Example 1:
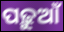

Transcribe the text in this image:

ପଢ଼ୁଆଁ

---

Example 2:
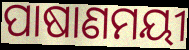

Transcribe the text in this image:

ପାଷାଣମୟୀ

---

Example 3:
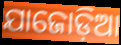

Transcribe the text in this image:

ଯାଜୋଡ଼ିଆ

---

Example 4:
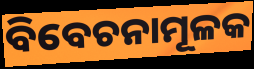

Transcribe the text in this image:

ବିବେଚନାମୂଳକ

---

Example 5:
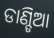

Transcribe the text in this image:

ଡାଣ୍ଡିଆ